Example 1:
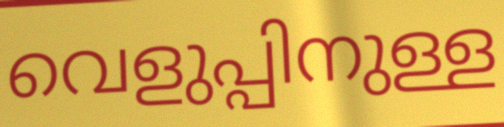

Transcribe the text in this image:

വെളുപ്പിനുള്ള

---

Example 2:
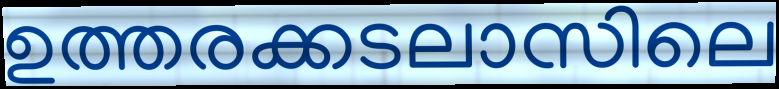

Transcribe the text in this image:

ഉത്തരക്കടലാസിലെ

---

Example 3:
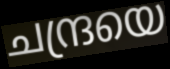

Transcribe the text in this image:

ചന്ദ്രയെ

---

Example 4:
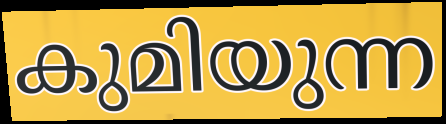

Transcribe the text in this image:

കുമിയുന്ന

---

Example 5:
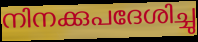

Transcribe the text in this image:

നിനക്കുപദേശിച്ചു